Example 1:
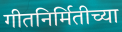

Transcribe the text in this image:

गीतनिर्मितीच्या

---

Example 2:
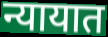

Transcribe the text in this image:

न्यायात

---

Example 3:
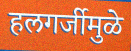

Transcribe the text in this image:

हलगर्जीमुळे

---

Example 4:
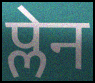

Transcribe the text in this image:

प्लेन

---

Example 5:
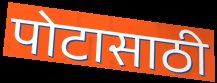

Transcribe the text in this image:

पोटासाठी